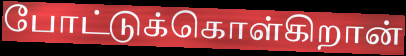
போட்டுக்கொள்கிறான்